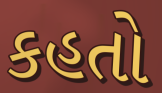
કહતો